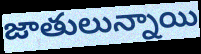
జాతులున్నాయి